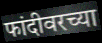
फांदीवरच्या